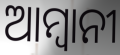
ଆମ୍ବାନୀ